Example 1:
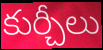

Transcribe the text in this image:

కుర్చీలు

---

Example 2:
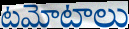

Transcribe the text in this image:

టమోటాలు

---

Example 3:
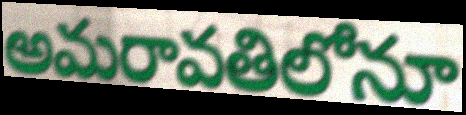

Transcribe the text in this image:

అమరావతిలోనూ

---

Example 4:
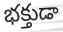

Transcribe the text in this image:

భక్తుడా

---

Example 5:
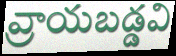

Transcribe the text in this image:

వ్రాయబడ్డవి